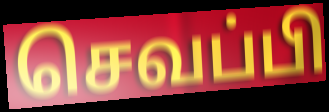
செவப்பி